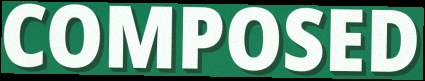
COMPOSED